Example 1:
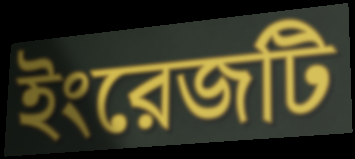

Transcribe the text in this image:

ইংরেজটি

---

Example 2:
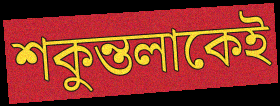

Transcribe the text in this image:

শকুন্তলাকেই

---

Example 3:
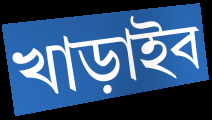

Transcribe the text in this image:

খাড়াইব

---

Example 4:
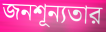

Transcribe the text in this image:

জনশূন্যতার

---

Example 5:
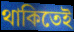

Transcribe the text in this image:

থাকিতেই